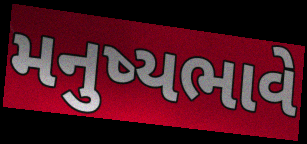
મનુષ્યભાવે